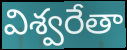
విశ్వరేతా